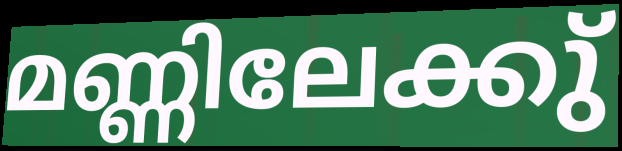
മണ്ണിലേക്കു്